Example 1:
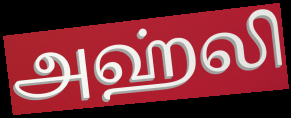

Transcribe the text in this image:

அஹ்லி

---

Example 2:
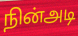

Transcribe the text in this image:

நின்அடி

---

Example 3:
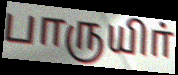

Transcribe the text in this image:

பாருயிர்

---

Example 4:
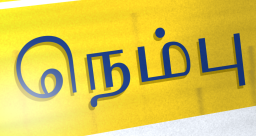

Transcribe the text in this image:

நெம்பு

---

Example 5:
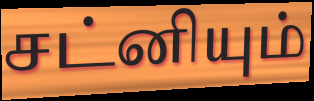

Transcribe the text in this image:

சட்னியும்